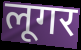
लूगर